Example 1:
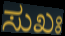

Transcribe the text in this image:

ಸುಖಃ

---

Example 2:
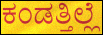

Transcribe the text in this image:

ಕಂಡತ್ತಿಲ್ಲೆ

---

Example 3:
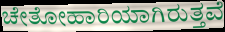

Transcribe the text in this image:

ಚೇತೋಹಾರಿಯಾಗಿರುತ್ತವೆ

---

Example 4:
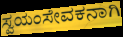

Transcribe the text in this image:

ಸ್ವಯಂಸೇವಕನಾಗಿ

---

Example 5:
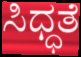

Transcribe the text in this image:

ಸಿಧ್ಧತೆ